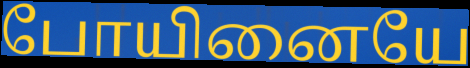
போயினையே